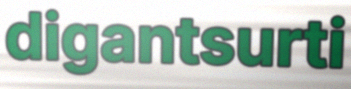
digantsurti